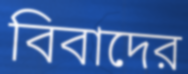
বিবাদের